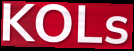
KOLs